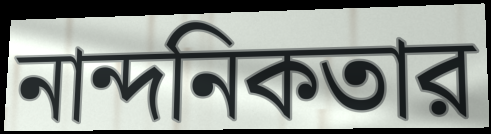
নান্দনিকতার